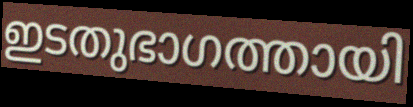
ഇടതുഭാഗത്തായി